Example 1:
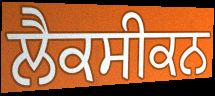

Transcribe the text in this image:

ਲੈਕਸੀਕਨ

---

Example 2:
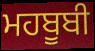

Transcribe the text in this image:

ਮਹਬੂਬੀ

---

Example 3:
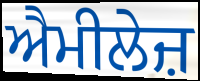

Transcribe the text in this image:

ਐਮੀਲੇਜ਼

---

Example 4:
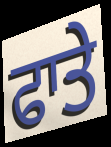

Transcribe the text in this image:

ਫਾਤੇ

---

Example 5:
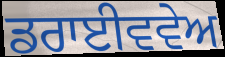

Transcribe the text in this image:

ਡਰਾਈਵਵੇਅ